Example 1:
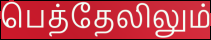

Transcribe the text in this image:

பெத்தேலிலும்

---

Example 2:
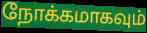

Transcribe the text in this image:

நோக்கமாகவும்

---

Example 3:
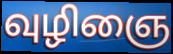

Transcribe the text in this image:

வுழிஞை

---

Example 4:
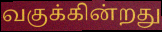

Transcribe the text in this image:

வகுக்கின்றது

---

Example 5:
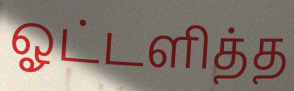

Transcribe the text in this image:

ஓட்டளித்த